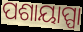
ପଶାୟାପ୍ପା